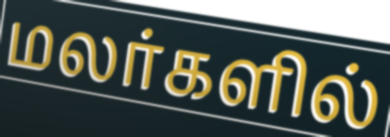
மலர்களில்